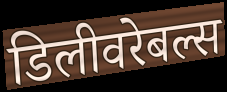
डिलीवरेबल्स